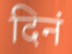
दिनं